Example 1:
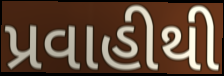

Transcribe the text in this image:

પ્રવાહીથી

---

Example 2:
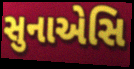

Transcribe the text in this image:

સુનાએસિ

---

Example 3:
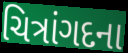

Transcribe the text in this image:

ચિત્રાંગદના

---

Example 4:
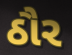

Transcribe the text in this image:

ઠૌર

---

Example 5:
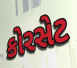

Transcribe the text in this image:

કોરસેટ